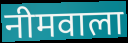
नीमवाला